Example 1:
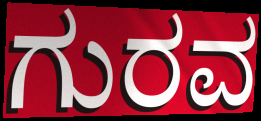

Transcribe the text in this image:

ಗುರವ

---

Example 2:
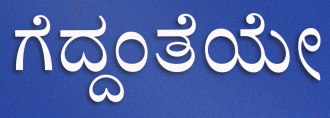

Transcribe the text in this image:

ಗೆದ್ದಂತೆಯೇ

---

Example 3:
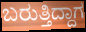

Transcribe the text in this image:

ಬರುತ್ತಿದ್ದಾಗ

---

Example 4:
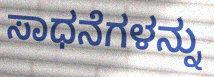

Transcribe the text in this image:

ಸಾಧನೆಗಳನ್ನು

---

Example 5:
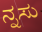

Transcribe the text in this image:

ನ್ನಸು